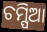
ଚମ୍ପିଆ